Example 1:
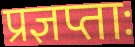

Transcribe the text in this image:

प्रज्ञप्ताः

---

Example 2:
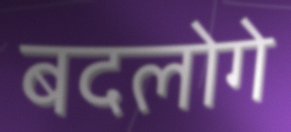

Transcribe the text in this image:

बदलोगे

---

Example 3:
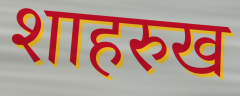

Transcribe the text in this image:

शाहरुख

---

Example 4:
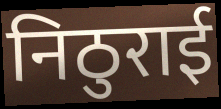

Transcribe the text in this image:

निठुराई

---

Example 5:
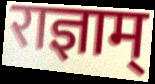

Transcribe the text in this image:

राज्ञाम्